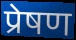
प्रेषण